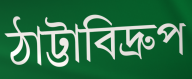
ঠাট্টাবিদ্রুপ